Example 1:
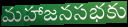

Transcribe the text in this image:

మహాజనసభకు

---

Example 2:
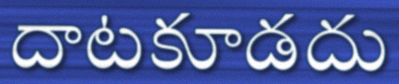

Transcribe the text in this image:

దాటకూడదు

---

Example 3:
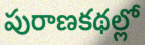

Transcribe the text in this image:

పురాణకథల్లో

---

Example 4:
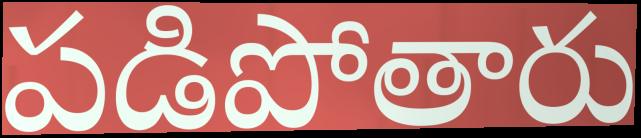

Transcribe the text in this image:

పడిపోతారు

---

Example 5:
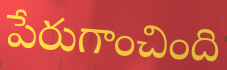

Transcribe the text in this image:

పేరుగాంచింది